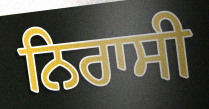
ਨਿਰਾਸੀ